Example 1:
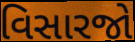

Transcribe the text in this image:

વિસારજો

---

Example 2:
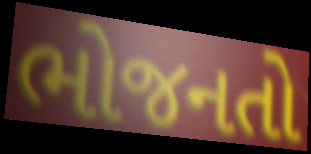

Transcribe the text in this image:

ભોજનતો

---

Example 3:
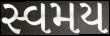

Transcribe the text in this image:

સ્વમય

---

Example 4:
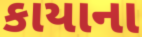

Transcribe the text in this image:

કાયાના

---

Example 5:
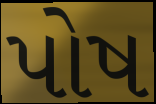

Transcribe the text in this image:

પોષ